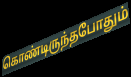
கொண்டிருந்தபோதும்